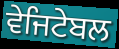
ਵੇਜਿਟੇਬਲ